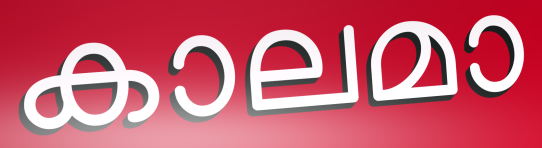
കാലമാ